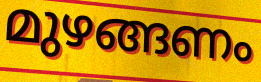
മുഴങ്ങണം